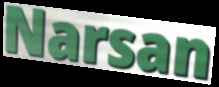
Narsan